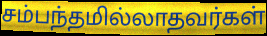
சம்பந்தமில்லாதவர்கள்